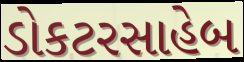
ડોકટરસાહેબ